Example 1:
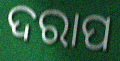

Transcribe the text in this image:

ଦରାପ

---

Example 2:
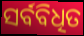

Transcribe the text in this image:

ସର୍ବବିଧିତ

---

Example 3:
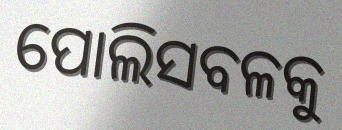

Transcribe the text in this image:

ପୋଲିସବଳକୁ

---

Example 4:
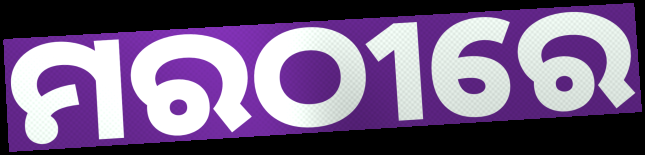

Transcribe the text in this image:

ମରଠୀରେ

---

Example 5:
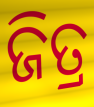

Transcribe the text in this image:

ଜିତ୍ର